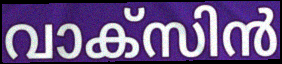
വാക്സിൻ